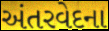
અંતરવેદના